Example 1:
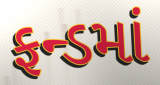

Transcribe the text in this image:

ફન્ડમાં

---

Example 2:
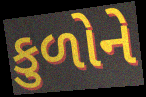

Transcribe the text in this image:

કુળોને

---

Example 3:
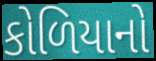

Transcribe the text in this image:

કોળિયાનો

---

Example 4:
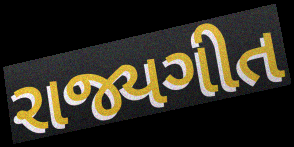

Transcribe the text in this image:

રાજ્યગીત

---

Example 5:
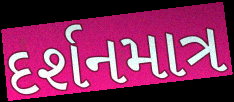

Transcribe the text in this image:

દર્શનમાત્ર